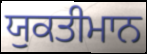
ਯੁਕਤੀਮਾਨ